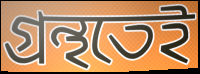
গ্ৰন্থতেই